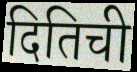
दितिची